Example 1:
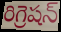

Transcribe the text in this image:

రిగ్రెషన్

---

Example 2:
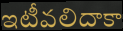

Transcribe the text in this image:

ఇటీవలిదాకా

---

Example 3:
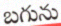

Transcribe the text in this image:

బగును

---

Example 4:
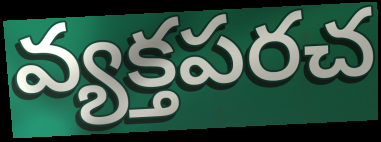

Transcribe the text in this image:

వ్యక్తపరచ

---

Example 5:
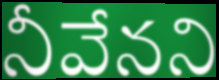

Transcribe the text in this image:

నీవేనని